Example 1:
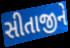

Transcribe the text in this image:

સીતાજીને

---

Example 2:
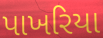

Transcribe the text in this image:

પાખરિયા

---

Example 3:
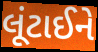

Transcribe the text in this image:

લૂંટાઈને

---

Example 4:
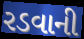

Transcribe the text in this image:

રડવાની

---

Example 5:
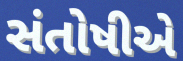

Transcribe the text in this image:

સંતોષીએ